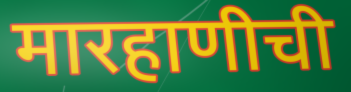
मारहाणीची